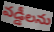
వడ్డీలను